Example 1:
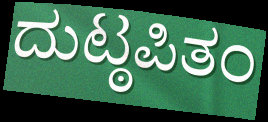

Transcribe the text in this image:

ದುಟ್ಠಪಿತಂ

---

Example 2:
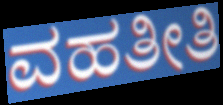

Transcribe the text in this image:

ವಹತೀತಿ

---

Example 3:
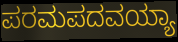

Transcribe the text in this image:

ಪರಮಪದವಯ್ಯಾ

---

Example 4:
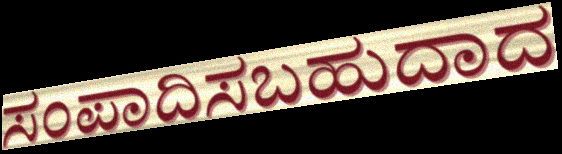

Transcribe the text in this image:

ಸಂಪಾದಿಸಬಹುದಾದ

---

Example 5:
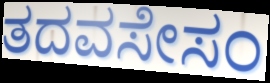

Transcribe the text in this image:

ತದವಸೇಸಂ